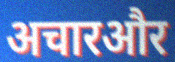
अचारऔर